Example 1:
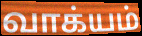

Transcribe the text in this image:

வாக்யம்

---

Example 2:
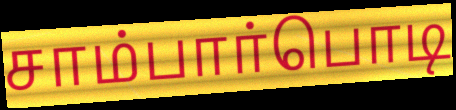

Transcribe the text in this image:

சாம்பார்பொடி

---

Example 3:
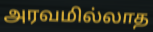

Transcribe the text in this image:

அரவமில்லாத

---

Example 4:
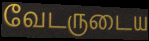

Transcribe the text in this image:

வேடருடைய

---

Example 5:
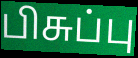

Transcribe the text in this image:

பிசுப்பு